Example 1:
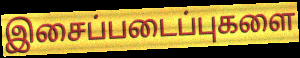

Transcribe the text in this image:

இசைப்படைப்புகளை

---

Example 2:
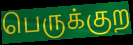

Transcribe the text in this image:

பெருக்குற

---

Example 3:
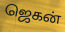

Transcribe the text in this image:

ஜெகன்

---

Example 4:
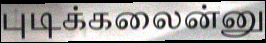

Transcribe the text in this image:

புடிக்கலைன்னு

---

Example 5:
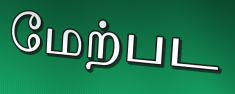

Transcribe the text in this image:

மேற்பட